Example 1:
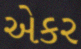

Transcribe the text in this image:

એકર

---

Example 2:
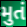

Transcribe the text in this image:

મુતં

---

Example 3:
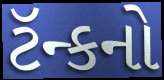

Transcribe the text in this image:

ટૅન્કનો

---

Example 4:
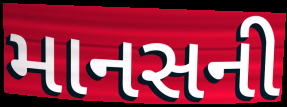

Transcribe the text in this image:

માનસની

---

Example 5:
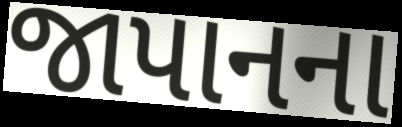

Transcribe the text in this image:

જાપાનના